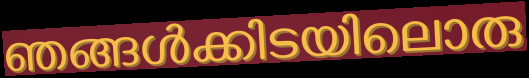
ഞങ്ങൾക്കിടയിലൊരു